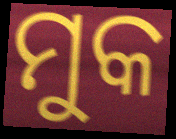
ମୁକ